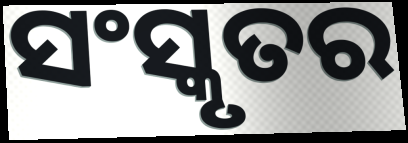
ସଂସ୍କୃତର